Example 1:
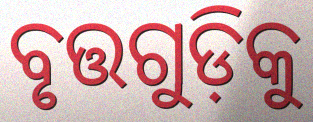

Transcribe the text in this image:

ବୃତ୍ତଗୁଡ଼ିକୁ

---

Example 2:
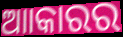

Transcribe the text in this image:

ଆାକାରର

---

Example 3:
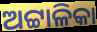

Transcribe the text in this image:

ଅଟ୍ଟାଳିକା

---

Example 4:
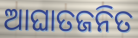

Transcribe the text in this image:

ଆଘାତଜନିତ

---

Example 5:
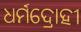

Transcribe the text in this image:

ଧର୍ମଦ୍ରୋହୀ